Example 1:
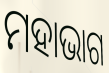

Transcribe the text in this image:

ମହାଭାଗ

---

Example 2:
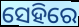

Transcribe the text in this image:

ସେହିରେ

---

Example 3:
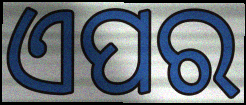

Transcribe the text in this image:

ଏପର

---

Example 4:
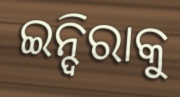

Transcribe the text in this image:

ଇନ୍ଦିରାକୁ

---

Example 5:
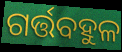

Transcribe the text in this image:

ଗର୍ତ୍ତବହୁଳ